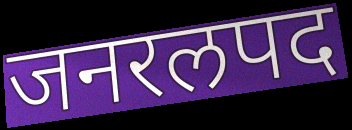
जनरलपद